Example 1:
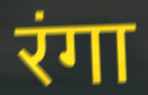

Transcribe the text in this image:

रंगा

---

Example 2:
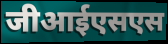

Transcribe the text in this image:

जीआईएसएस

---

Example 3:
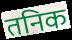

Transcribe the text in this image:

तनिक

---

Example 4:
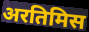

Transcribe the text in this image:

अरतिमिस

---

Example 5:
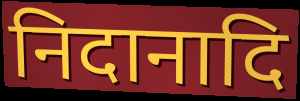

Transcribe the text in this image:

निदानादि